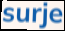
surje